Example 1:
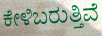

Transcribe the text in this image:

ಕೇಳಿಬರುತ್ತಿವೆ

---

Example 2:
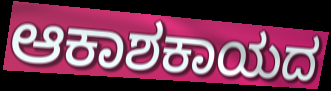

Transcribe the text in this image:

ಆಕಾಶಕಾಯದ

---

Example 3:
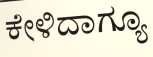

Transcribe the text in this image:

ಕೇಳಿದಾಗ್ಯೂ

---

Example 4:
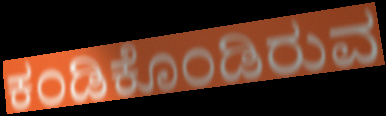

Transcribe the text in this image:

ಕಂಡಿಕೊಂಡಿರುವ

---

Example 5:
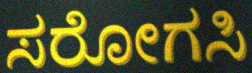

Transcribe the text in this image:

ಸರೋಗಸಿ